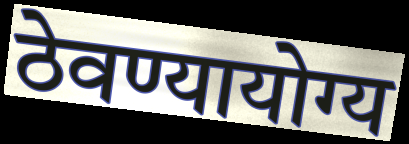
ठेवण्यायोग्य